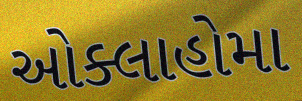
ઓક્લાહોમા